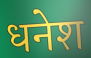
धनेश